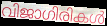
വിജാഗിരികൾ